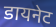
डायनेट